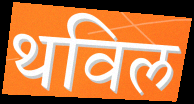
थविल